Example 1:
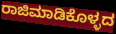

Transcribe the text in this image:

ರಾಜಿಮಾಡಿಕೊಳ್ಳದ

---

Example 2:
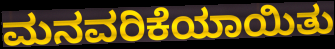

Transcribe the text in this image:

ಮನವರಿಕೆಯಾಯಿತು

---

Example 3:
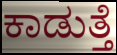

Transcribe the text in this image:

ಕಾಡುತ್ತೆ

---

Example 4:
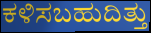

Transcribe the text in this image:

ಕಳಿಸಬಹುದಿತ್ತು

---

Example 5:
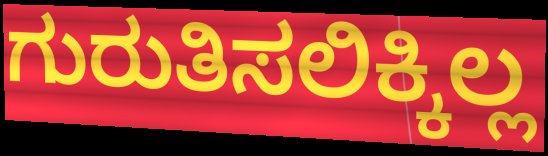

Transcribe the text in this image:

ಗುರುತಿಸಲಿಕ್ಕಿಲ್ಲ